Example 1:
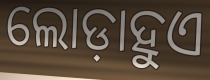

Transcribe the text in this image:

ଲୋଡ଼ାହୁଏ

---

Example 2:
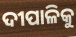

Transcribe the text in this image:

ଦୀପାଳିକୁ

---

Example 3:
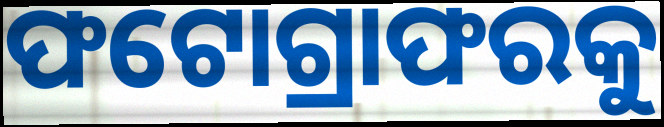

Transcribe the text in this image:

ଫଟୋଗ୍ରାଫରକୁ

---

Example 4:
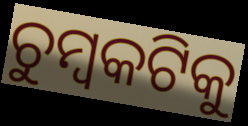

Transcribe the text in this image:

ଚୁମ୍ବକଟିକୁ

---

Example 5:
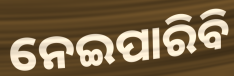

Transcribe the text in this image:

ନେଇପାରିବି